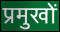
प्रमुखों